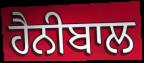
ਹੈਨੀਬਾਲ